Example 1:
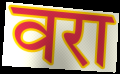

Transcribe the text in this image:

वरा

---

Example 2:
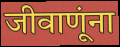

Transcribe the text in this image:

जीवाणूंना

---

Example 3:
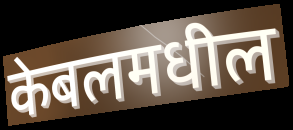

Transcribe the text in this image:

केबलमधील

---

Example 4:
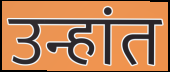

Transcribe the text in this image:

उन्हांत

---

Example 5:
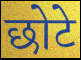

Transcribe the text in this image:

छोटे